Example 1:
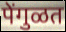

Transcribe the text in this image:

पेंगुळत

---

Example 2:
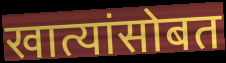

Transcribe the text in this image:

खात्यांसोबत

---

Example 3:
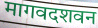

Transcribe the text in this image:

मागवदशवन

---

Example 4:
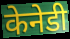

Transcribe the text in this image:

केनेडी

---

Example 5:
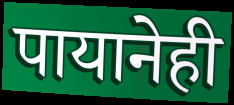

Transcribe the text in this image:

पायानेही